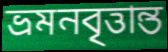
ভ্রমনবৃত্তান্ত